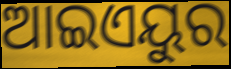
ଆଇଏୟୁର